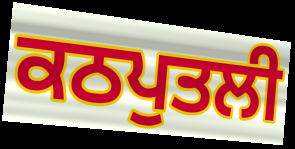
ਕਠਪੁਤਲੀ